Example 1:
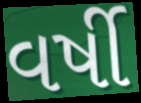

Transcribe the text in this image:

વર્ષી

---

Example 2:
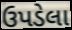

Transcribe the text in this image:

ઉપડેલા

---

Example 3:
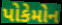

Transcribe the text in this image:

પોકેમોન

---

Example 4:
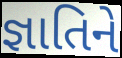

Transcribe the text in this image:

જ્ઞાતિને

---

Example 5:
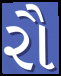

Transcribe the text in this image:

રૌ